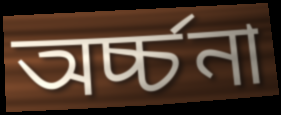
অর্চ্চনা